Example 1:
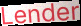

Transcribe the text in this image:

Lender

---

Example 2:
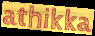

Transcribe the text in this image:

athikka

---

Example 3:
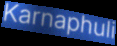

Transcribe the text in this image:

Karnaphuli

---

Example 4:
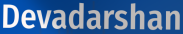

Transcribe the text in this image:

Devadarshan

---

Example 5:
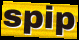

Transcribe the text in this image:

spip